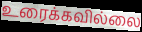
உரைக்கவில்லை